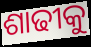
ଶାଢୀକୁ